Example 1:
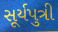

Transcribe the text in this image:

સૂર્યપુત્રી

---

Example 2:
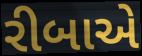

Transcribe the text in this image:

રીબાએ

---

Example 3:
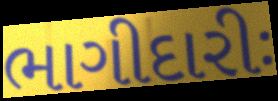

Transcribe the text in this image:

ભાગીદારીઃ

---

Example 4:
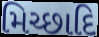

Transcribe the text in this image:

મિચ્છાદિ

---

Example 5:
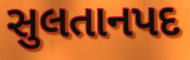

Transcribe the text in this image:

સુલતાનપદ